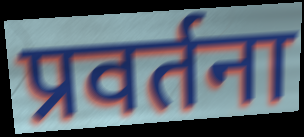
प्रवर्तना